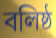
বলিষ্ঠ